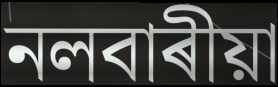
নলবাৰীয়া